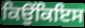
ਕਿਉਂਕਿਇਸ